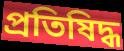
প্রতিষিদ্ধ